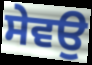
ਸੇਵਉ